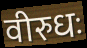
वीरुधः